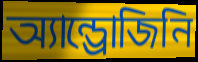
অ্যান্ড্রোজিনি